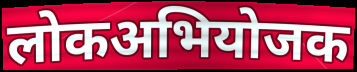
लोकअभियोजक